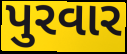
પુરવાર